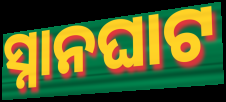
ସ୍ନାନଘାଟ